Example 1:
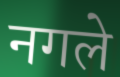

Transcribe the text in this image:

नगले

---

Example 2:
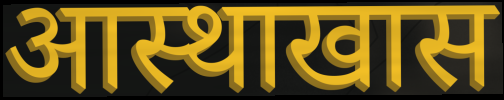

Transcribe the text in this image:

आस्थाखास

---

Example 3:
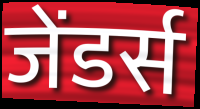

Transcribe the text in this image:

जेंडर्स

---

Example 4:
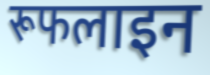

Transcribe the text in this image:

रूफलाइन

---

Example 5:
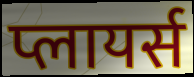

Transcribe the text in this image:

प्लायर्स